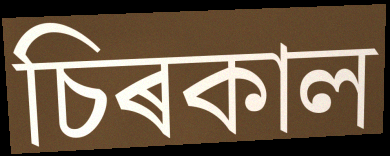
চিৰকাল